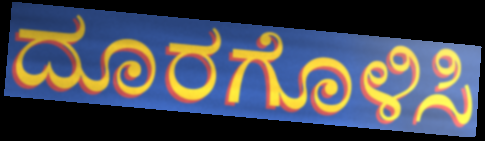
ದೂರಗೊಳಿಸಿ